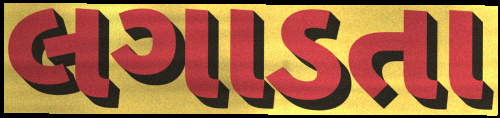
લગાડતા